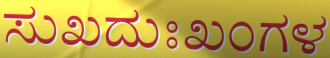
ಸುಖದುಃಖಂಗಳ